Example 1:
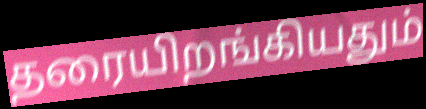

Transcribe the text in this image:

தரையிறங்கியதும்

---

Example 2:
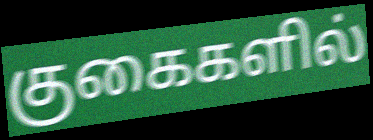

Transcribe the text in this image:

குகைகளில்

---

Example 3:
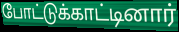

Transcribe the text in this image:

போட்டுக்காட்டினார்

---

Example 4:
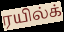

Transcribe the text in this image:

ரயில்க்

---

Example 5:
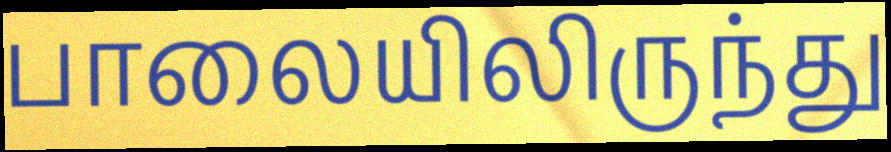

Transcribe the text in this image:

பாலையிலிருந்து